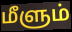
மீளும்